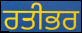
ਰਤੀਭਰ